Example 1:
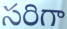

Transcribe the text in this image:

సరిగా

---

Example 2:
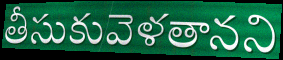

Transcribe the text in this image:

తీసుకువెళతానని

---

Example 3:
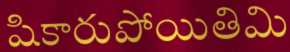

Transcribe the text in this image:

షికారుపోయితిమి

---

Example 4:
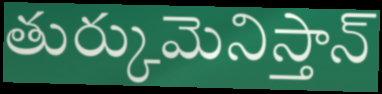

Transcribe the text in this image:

తుర్కుమెనిస్తాన్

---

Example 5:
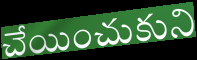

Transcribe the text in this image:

చేయించుకుని